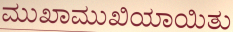
ಮುಖಾಮುಖಿಯಾಯಿತು